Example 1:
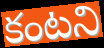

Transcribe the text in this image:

కంటని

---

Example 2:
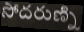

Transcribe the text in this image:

సోదరుణ్ని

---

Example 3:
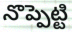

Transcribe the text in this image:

నొప్పెట్టి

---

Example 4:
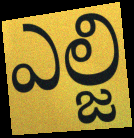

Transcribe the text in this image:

ఎల్జి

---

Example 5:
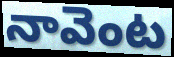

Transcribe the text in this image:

నావెంట